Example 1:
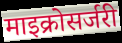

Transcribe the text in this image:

माइक्रोसर्जरी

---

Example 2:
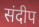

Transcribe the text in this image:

संदीप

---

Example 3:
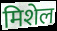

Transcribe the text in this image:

मिशेल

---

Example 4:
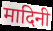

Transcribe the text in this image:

मादिनी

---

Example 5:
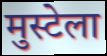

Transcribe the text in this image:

मुस्टेला